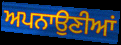
ਅਪਨਾਉਣੀਆਂ